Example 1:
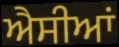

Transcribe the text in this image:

ਐਸੀਆਂ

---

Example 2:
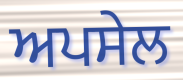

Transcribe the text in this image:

ਅਪਸੇਲ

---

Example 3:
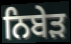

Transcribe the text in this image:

ਨਿਬੇੜ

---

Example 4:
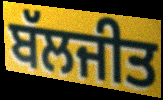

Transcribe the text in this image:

ਬੱਲਜੀਤ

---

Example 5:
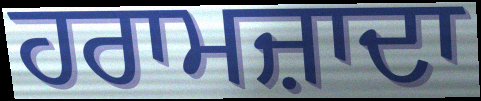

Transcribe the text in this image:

ਹਰਾਮਜ਼ਾਦਾ